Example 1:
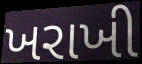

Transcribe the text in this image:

ખરાખી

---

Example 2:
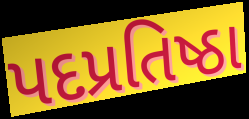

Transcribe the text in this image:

પદપ્રતિષ્ઠા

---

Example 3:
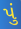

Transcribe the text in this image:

પું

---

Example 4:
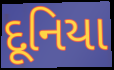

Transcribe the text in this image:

દૂનિયા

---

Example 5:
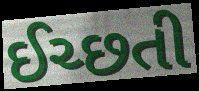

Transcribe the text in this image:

ઈચ્છતી